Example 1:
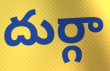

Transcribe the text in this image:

దుర్గా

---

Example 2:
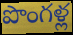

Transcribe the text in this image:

పొంగళ్ల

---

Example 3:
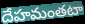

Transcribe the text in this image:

దేహమంతటా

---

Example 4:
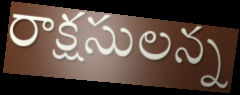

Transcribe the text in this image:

రాక్షసులన్న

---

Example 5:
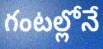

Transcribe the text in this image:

గంటల్లోనే